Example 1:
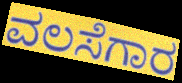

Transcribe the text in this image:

ವಲಸೆಗಾರ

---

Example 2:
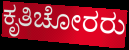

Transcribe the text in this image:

ಕೃತಿಚೋರರು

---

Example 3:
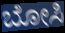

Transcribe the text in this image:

ಬೋಸಿ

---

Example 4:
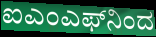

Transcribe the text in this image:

ಐಎಂಎಫ್‌ನಿಂದ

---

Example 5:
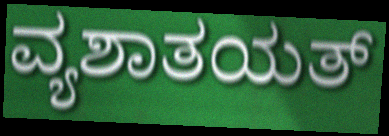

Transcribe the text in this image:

ವ್ಯಶಾತಯತ್